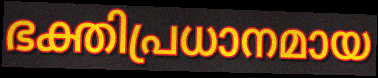
ഭക്തിപ്രധാനമായ